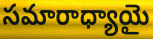
సమారాధ్యాయై